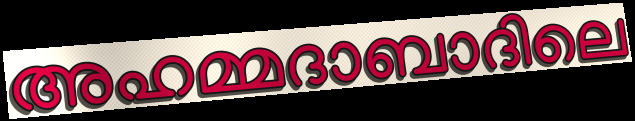
അഹമ്മദാബാദിലെ